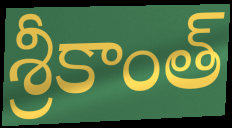
శ్రీకాంత్